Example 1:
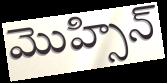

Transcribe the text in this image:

మొహ్సిన్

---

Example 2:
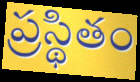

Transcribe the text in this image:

ప్రస్థితం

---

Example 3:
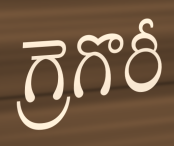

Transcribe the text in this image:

గ్రెగొరీ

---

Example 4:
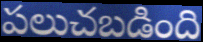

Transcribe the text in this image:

పలుచబడింది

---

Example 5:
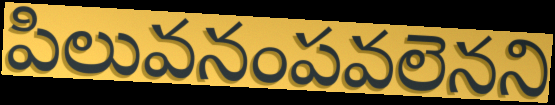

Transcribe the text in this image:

పిలువనంపవలెనని